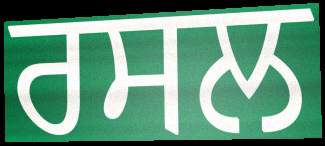
ਰਸਲ